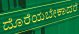
ದೊರೆಯಬೇಕಾದರೆ